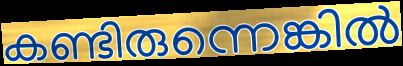
കണ്ടിരുന്നെങ്കിൽ